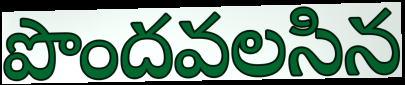
పొందవలసిన